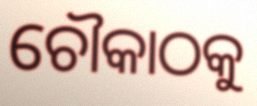
ଚୌକାଠକୁ